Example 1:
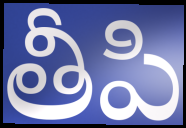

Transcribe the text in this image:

తీపి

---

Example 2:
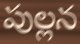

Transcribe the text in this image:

పుల్లన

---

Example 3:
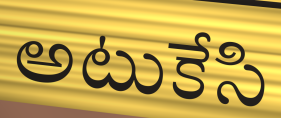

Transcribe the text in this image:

అటుకేసి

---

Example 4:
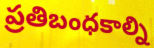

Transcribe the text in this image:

ప్రతిబంధకాల్ని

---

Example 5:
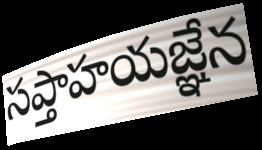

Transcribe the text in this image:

సప్తాహయజ్ఞేన